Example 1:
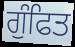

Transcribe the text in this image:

ਗੁੰਫਿਤ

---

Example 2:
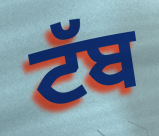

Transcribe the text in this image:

ਟੱਬ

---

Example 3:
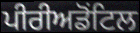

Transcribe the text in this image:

ਪੀਰੀਅਡੋਂਟਿਲ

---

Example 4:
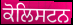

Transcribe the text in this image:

ਕੋਲਿਸਟਨ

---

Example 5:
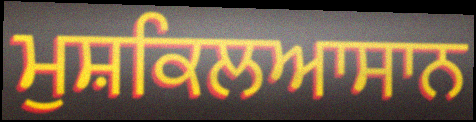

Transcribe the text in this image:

ਮੁਸ਼ਕਿਲਆਸਾਨ